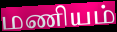
மணியம்